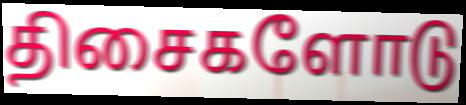
திசைகளோடு